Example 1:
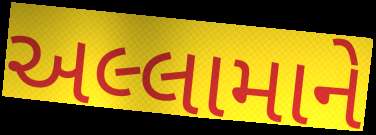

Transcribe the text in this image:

અલ્લામાને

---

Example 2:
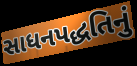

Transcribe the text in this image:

સાધનપદ્ધતિનું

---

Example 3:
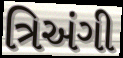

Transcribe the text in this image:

ત્રિઅંગી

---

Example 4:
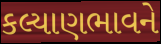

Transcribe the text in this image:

કલ્યાણભાવને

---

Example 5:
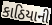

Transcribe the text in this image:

કાઠિયાની